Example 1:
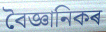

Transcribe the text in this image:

বৈজ্ঞানিকৰ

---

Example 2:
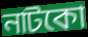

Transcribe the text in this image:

নাটকো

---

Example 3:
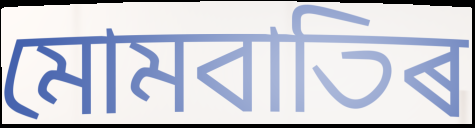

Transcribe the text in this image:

মোমবাতিৰ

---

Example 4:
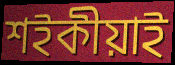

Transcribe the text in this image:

শইকীয়াই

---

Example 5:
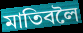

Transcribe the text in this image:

মাতিবলৈ